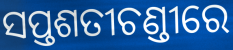
ସପ୍ତଶତୀଚଣ୍ଡୀରେ